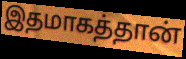
இதமாகத்தான்